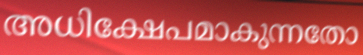
അധിക്ഷേപമാകുന്നതോ